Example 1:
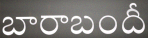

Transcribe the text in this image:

బారాబందీ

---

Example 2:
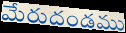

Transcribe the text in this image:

మేరుదండము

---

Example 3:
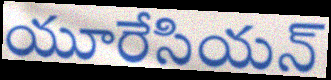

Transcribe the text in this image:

యూరేసియన్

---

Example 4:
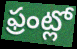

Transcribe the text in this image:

ఫ్రంట్లో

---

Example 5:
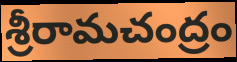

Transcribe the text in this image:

శ్రీరామచంద్రం